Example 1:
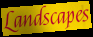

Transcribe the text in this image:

Landscapes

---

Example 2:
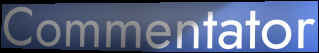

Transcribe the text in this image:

Commentator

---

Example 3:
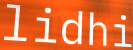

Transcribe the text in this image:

lidhi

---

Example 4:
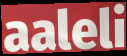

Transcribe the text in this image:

aaleli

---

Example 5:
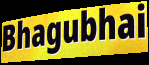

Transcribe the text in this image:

Bhagubhai